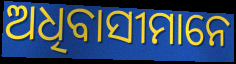
ଅଧିବାସୀମାନେ